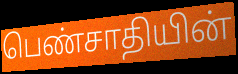
பெண்சாதியின்